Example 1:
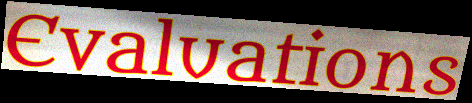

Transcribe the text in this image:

Evaluations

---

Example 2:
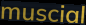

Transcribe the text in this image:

muscial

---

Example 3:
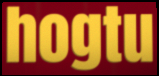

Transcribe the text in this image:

hogtu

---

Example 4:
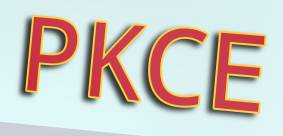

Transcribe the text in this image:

PKCE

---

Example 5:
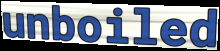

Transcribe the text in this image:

unboiled